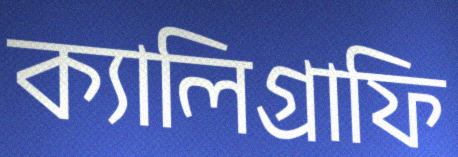
ক্যালিগ্রাফি